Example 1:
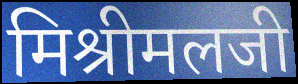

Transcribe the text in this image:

मिश्रीमलजी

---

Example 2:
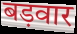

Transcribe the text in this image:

बड़वार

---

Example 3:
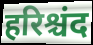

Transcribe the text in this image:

हरिश्चंद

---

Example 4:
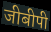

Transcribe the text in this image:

जीबीपी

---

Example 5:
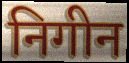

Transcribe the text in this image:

निगीन